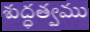
శుద్ధత్వము